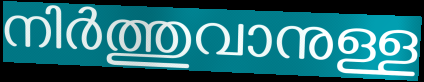
നിർത്തുവാനുള്ള